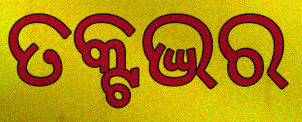
ତକ୍ଟଦ୍ଭର